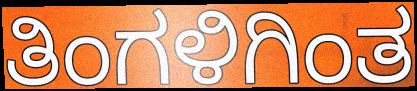
ತಿಂಗಳಿಗಿಂತ